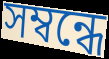
সম্বন্ধে